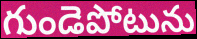
గుండెపోటును